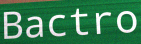
Bactro